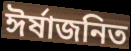
ঈর্ষাজনিত